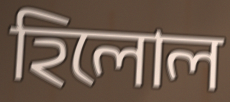
হিলোল